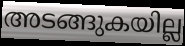
അടങ്ങുകയില്ല